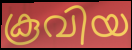
കൂവിയ